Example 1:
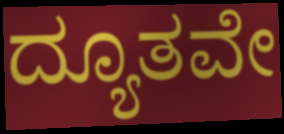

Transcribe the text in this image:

ದ್ಯೂತವೇ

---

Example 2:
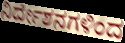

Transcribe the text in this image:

ನಿರ್ದೇಶನಗಳಿಂದ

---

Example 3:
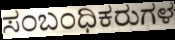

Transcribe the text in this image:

ಸಂಬಂಧಿಕರುಗಳ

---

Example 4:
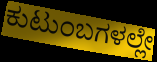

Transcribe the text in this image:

ಕುಟುಂಬಗಳಲ್ಲೇ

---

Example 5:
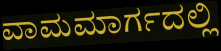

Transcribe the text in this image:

ವಾಮಮಾರ್ಗದಲ್ಲಿ